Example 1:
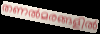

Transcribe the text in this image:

തണൽമരങ്ങളിൽ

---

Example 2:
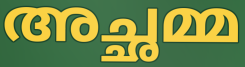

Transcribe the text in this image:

അച്ഛമ്മ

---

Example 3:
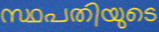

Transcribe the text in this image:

സ്ഥപതിയുടെ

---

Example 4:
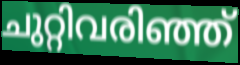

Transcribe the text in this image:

ചുറ്റിവരിഞ്ഞ്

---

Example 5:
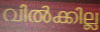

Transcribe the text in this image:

വിൽക്കില്ല